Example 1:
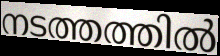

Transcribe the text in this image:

നടത്തത്തിൽ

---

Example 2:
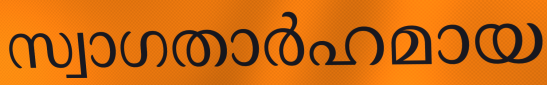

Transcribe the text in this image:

സ്വാഗതാർഹമായ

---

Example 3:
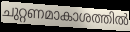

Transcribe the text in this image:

ചുറ്റണമാകാശത്തിൽ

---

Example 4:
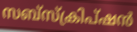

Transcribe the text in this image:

സബ്സ്ക്രിപ്ഷൻ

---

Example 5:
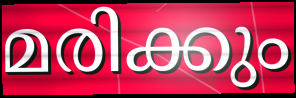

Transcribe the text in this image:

മരിക്കും